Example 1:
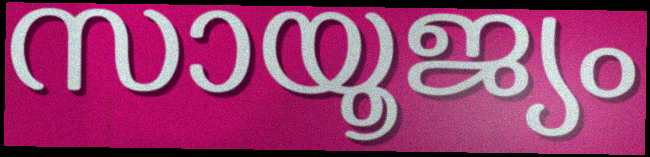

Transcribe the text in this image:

സായൂജ്യം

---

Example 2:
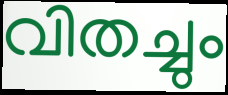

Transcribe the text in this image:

വിതച്ചും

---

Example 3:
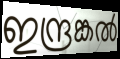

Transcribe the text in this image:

ഇന്ദ്രങ്കൽ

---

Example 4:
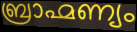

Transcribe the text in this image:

ബ്രാഹ്മണ്യം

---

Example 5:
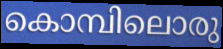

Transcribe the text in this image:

കൊമ്പിലൊരു